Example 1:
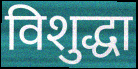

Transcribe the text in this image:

विशुद्धा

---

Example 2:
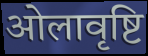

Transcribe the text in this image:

ओलावृष्टि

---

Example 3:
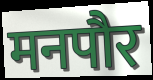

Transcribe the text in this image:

मनपौर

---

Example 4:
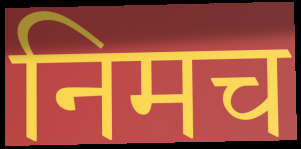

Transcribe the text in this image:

निमच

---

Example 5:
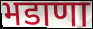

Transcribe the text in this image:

भडाणा